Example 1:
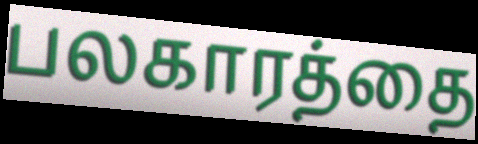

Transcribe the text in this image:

பலகாரத்தை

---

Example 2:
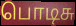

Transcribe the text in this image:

பொடிசு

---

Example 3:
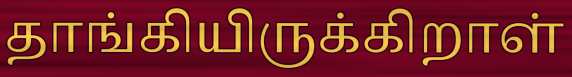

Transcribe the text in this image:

தாங்கியிருக்கிறாள்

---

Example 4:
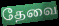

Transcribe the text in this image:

தேவை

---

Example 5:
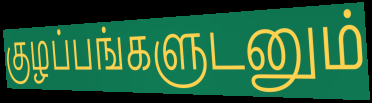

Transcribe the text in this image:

குழப்பங்களுடனும்